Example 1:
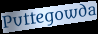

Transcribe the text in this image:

Puttegowda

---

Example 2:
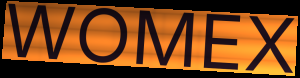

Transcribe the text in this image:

WOMEX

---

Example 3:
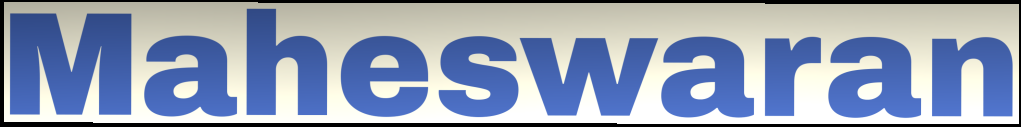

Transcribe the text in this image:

Maheswaran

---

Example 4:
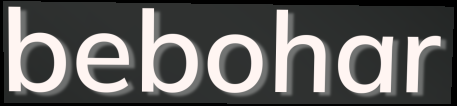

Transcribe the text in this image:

bebohar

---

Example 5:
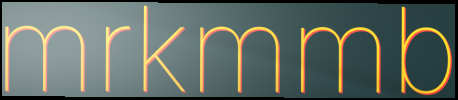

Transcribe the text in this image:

mrkmmb